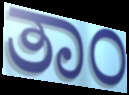
ತಾಂ